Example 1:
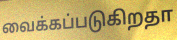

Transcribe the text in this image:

வைக்கப்படுகிறதா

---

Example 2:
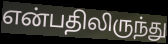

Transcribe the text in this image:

என்பதிலிருந்து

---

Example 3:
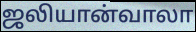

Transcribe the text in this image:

ஜலியான்வாலா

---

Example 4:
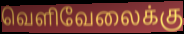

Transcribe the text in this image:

வெளிவேலைக்கு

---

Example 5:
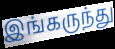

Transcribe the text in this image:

இங்கருந்து